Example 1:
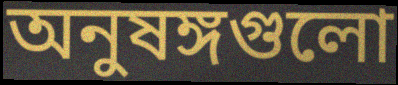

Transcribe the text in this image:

অনুষঙ্গগুলো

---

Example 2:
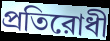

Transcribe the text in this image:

প্রতিরোধী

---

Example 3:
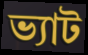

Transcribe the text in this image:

ভ্যাট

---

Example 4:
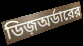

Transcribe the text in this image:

ডিজ়অর্ডারের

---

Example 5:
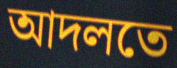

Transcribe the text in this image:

আদলতে